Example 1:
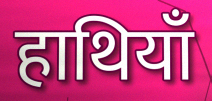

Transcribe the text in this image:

हाथियाँ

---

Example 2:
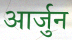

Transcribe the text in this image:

आर्जुन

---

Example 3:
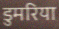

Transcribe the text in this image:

डुमरिया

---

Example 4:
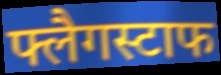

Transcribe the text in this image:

फ्लैगस्टाफ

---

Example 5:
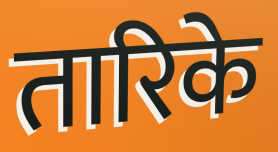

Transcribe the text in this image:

तारिके